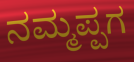
ನಮ್ಮಪ್ಪಗ